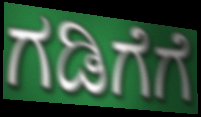
ಗಡಿಗೆಗೆ